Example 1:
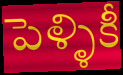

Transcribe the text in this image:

పెళ్ళికీ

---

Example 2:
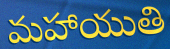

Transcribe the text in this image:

మహాయుతి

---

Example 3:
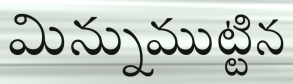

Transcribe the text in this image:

మిన్నుముట్టిన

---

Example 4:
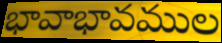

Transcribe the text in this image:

భావాభావముల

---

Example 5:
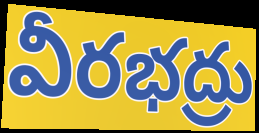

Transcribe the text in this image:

వీరభద్రు